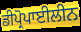
ਡੀਪ੍ਰੋਪਾਈਲੀਨ